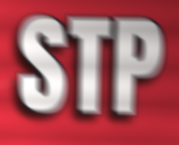
STP